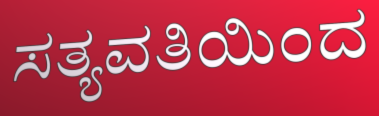
ಸತ್ಯವತಿಯಿಂದ